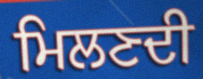
ਮਿਲਣਦੀ